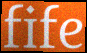
fife